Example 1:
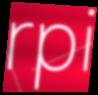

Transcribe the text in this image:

rpi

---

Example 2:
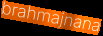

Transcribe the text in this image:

brahmajnana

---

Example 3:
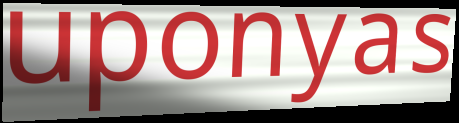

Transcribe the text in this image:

uponyas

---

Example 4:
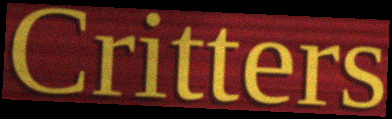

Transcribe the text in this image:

Critters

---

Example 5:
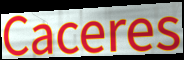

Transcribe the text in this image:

Caceres